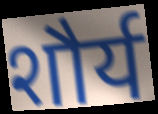
शौर्य